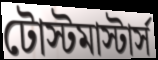
টোস্টমাস্টার্স